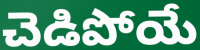
చెడిపోయే